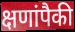
क्षणांपैकी